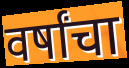
वर्षांचा